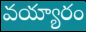
వయ్యారం